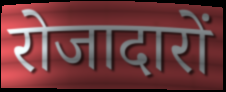
रोजादारों